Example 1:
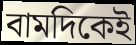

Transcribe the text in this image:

বামদিকেই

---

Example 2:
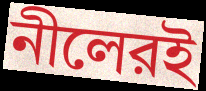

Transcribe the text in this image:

নীলেরই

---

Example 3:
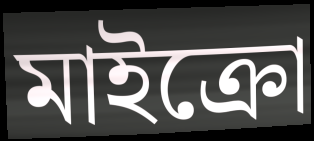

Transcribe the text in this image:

মাইক্রো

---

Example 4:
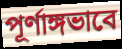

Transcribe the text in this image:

পূর্ণাঙ্গভাবে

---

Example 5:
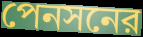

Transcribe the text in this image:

পেনসনের